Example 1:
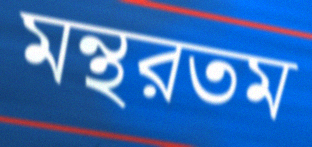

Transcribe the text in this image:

মন্থরতম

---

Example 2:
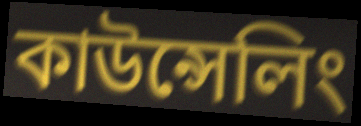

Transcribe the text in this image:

কাউন্সেলিং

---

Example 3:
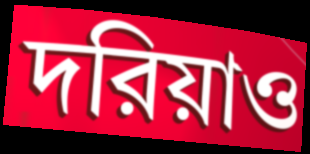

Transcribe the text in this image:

দরিয়াও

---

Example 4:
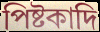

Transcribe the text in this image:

পিষ্টকাদি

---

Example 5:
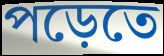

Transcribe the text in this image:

পড়েতে